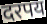
दरपय